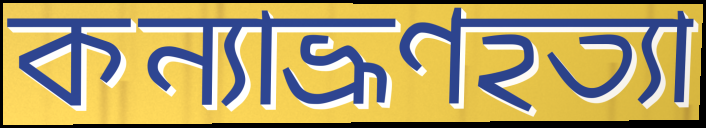
কন্যাভ্রূণহত্যা